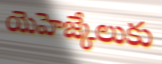
యెహెజ్కేలుకు